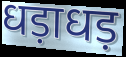
धड़ाधड़